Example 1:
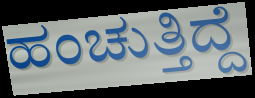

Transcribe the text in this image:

ಹಂಚುತ್ತಿದ್ದೆ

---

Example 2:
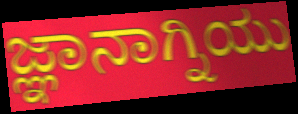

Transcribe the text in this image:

ಜ್ಞಾನಾಗ್ನಿಯು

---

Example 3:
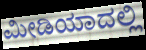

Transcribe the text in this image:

ಮೀಡಿಯಾದಲ್ಲಿ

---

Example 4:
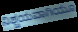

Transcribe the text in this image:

ನಿಶ್ಚಯವಾಗಿಯೂ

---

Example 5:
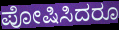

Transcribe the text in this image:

ಪೋಷಿಸಿದರೂ